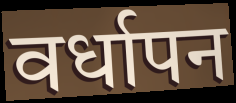
वर्धापन